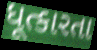
ધૂત્કારતા